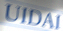
UIDAI